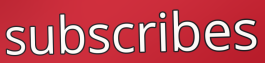
subscribes